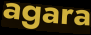
agara